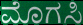
ಮೊಗಸಿ